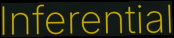
Inferential